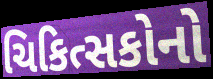
ચિકિત્સકોનો